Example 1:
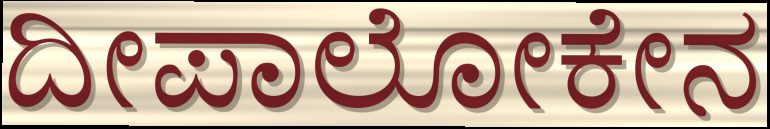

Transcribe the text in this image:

ದೀಪಾಲೋಕೇನ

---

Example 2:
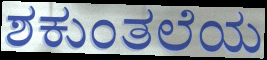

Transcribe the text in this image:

ಶಕುಂತಲೆಯ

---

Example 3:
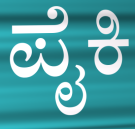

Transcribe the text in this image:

ಪೈಕಿ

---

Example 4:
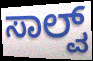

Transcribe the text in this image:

ಸಾಲ್ವ್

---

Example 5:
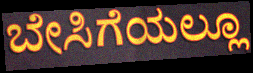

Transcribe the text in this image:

ಬೇಸಿಗೆಯಲ್ಲೂ